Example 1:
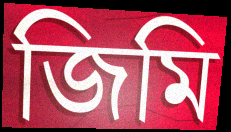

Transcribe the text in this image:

জিমি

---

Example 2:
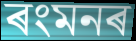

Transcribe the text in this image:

ৰংমনৰ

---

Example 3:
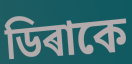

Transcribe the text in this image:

ডিৰাকে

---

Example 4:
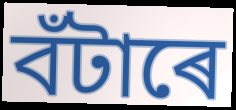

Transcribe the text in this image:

বঁটাৰে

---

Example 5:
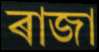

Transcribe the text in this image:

ৰাজা